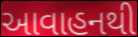
આવાહનથી